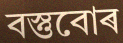
বস্তুবোৰ